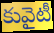
కువైటీ